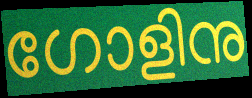
ഗോളിനു